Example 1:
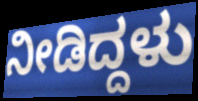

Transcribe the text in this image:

ನೀಡಿದ್ದಳು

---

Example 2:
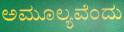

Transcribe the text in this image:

ಅಮೂಲ್ಯವೆಂದು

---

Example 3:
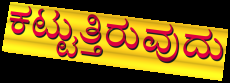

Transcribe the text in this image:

ಕಟ್ಟುತ್ತಿರುವುದು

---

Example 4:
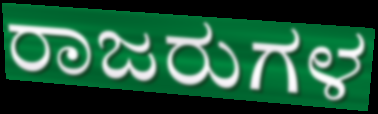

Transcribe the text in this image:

ರಾಜರುಗಳ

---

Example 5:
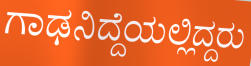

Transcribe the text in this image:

ಗಾಢನಿದ್ದೆಯಲ್ಲಿದ್ದರು